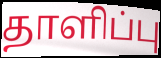
தாளிப்பு